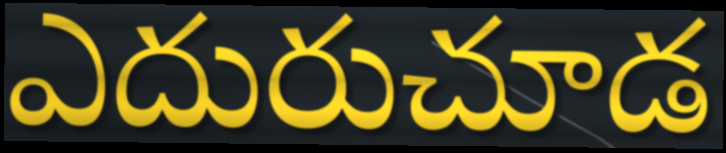
ఎదురుచూడ